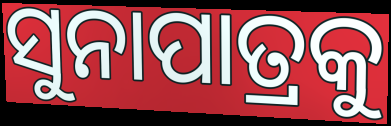
ସୁନାପାତ୍ରକୁ